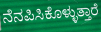
ನೆನಪಿಸಿಕೊಳ್ಳುತ್ತಾರೆ